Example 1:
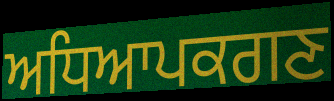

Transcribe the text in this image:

ਅਧਿਆਪਕਗਣ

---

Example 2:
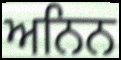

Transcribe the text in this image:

ਅਨਿਨ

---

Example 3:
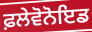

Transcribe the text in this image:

ਫ਼ਲੇਵੋਨੋਇਡ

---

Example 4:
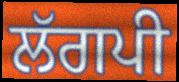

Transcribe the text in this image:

ਲੱਗਪੀ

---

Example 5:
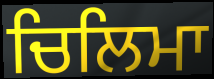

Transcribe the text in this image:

ਚਿਲਿਮਾ